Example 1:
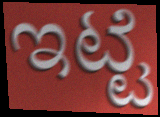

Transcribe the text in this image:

ಇಟ್ಟೆ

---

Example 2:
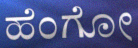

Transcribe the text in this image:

ಹೆಂಗೋ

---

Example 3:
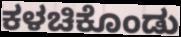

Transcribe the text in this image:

ಕಳಚಿಕೊಂಡು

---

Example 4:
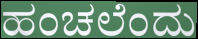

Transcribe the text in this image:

ಹಂಚಲೆಂದು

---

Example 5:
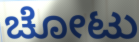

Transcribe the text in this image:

ಚೋಟು